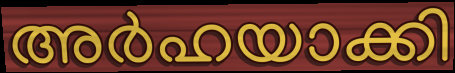
അർഹയാക്കി